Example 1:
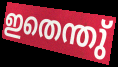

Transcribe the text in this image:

ഇതെന്തു്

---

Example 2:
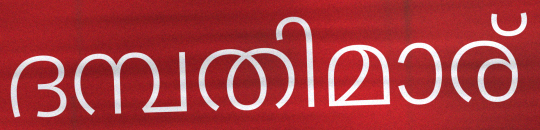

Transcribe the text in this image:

ദമ്പതിമാര്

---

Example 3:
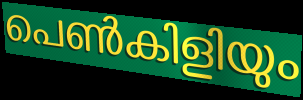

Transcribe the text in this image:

പെൺകിളിയും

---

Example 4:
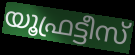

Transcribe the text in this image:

യൂഫ്രട്ടീസ്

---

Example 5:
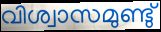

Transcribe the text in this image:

വിശ്വാസമുണ്ടു്